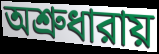
অশ্রুধারায়